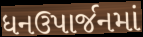
ધનઉપાર્જનમાં